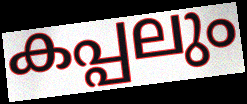
കപ്പലും